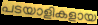
പടയാളികളായ